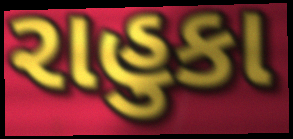
રાહુકા